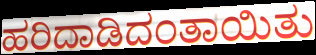
ಹರಿದಾಡಿದಂತಾಯಿತು